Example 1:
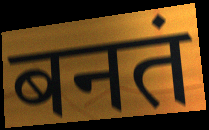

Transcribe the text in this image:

बनतं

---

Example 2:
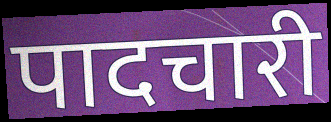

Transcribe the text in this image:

पादचारी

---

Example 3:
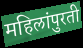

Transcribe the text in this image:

महिलांपुरती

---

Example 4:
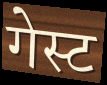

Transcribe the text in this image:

गेस्ट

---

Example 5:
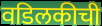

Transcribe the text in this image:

वडिलकीची